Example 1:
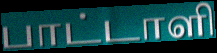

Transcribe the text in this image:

பாட்டாளி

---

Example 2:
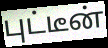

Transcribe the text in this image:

புட்டீன்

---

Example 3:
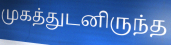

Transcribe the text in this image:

முகத்துடனிருந்த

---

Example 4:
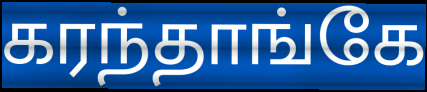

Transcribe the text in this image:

கரந்தாங்கே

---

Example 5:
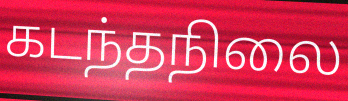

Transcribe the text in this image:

கடந்தநிலை